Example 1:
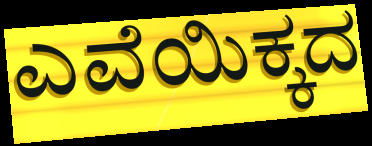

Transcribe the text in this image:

ಎವೆಯಿಕ್ಕದ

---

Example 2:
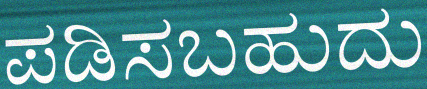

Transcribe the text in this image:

ಪಡಿಸಬಹುದು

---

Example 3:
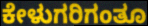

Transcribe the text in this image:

ಕೇಳುಗರಿಗಂತೂ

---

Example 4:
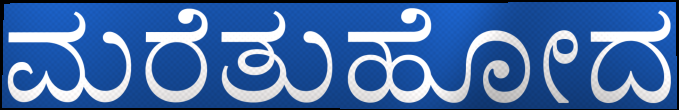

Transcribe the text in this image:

ಮರೆತುಹೋದ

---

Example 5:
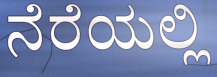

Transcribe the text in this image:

ನೆರೆಯಲ್ಲಿ